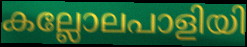
കല്ലോലപാളിയി